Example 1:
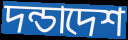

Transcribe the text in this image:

দন্ডাদেশ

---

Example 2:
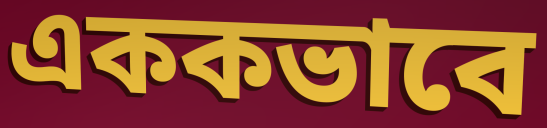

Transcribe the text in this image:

এককভাবে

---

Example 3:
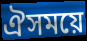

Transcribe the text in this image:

ঐসময়ে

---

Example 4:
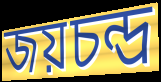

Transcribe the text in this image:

জয়চন্দ্র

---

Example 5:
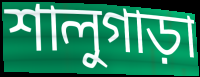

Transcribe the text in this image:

শালুগাড়া